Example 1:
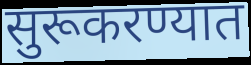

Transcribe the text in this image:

सुरूकरण्यात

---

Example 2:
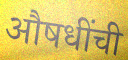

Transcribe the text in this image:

औषधींची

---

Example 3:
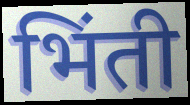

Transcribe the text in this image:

भिंती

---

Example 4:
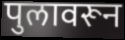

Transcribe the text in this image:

पुलावरून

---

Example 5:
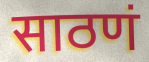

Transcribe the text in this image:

साठणं